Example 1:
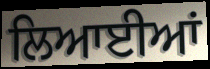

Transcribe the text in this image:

ਲਿਆਈਆਂ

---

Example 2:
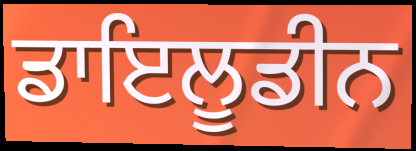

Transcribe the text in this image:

ਡਾਇਲੂਡੀਨ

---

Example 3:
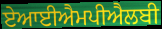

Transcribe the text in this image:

ਏਆਈਐਮਪੀਐਲਬੀ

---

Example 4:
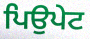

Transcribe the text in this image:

ਪਿਉਪੇਟ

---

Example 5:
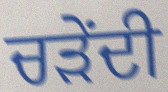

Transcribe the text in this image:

ਚੜੇਂਦੀ